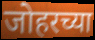
जोहरच्या